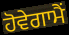
ਹੋਵੇਗਾਮੈਂ